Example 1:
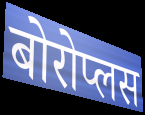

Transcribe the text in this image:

बोरोप्लस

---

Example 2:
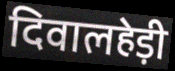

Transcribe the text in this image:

दिवालहेड़ी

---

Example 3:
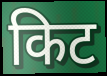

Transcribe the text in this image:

किट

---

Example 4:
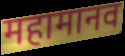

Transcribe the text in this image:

महामानव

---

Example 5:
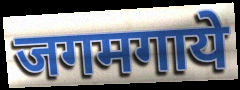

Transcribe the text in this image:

जगमगाये